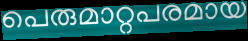
പെരുമാറ്റപരമായ